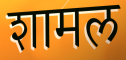
शामल